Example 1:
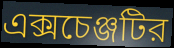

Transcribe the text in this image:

এক্সচেঞ্জটির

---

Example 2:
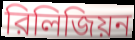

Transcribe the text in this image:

রিলিজিয়ন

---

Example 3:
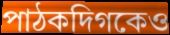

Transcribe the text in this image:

পাঠকদিগকেও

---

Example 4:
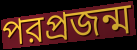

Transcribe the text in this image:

পরপ্রজন্ম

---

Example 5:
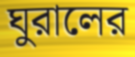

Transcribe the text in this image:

ঘুরালের